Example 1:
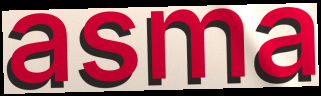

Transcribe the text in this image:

asma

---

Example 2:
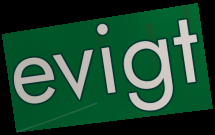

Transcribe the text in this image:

evigt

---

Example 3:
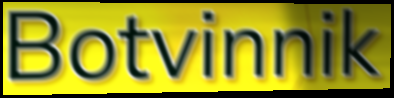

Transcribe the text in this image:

Botvinnik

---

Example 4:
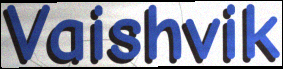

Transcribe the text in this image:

Vaishvik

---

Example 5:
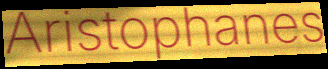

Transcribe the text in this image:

Aristophanes